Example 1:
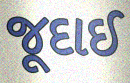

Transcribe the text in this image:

જૂદાઈ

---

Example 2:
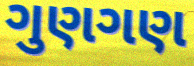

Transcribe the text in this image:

ગુણગણ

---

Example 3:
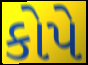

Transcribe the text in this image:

કોપે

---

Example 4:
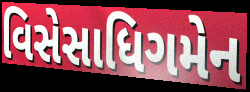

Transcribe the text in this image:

વિસેસાધિગમેન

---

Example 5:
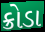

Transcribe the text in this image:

ક્રોડા